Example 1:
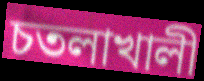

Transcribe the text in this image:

চতলাখালী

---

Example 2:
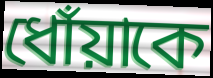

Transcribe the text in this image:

ধোঁয়াকে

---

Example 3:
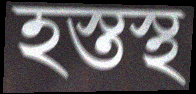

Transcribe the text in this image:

হস্তস্থ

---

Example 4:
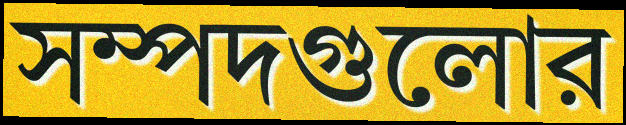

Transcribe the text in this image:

সম্পদগুলোর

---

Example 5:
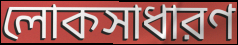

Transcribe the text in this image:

লোকসাধারণ